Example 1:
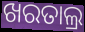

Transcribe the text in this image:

ଖରତାଲ୍ର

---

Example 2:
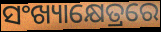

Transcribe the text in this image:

ସଂଖ୍ୟାକ୍ଷେତ୍ରରେ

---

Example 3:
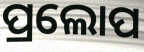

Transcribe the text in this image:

ପ୍ରଲୋପ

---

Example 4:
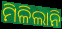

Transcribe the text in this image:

ମିଳିଲାନି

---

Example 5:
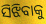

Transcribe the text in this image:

ସିଝିବାକୁ